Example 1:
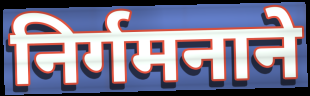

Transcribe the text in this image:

निर्गमनाने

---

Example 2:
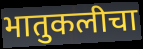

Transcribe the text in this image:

भातुकलीचा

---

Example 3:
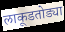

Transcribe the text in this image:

लाकूडतोड्या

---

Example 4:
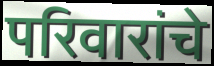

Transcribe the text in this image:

परिवारांचे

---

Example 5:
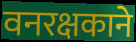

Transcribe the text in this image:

वनरक्षकाने